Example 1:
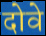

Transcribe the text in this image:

दोवे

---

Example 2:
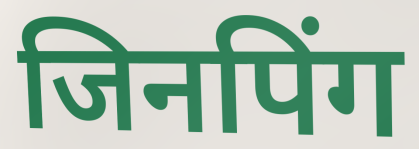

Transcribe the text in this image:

जिनपिंग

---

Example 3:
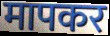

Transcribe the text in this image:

मापकर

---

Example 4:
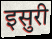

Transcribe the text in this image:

इसुरी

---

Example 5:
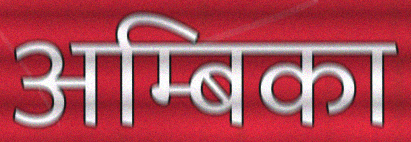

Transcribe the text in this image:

अम्बिका